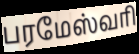
பரமேஸ்வரி